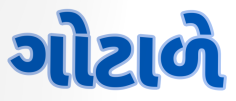
ગોટાળે